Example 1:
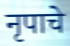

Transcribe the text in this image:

नृपाचे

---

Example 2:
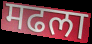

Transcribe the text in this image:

मढला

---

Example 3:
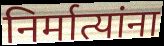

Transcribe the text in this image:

निर्मात्यांना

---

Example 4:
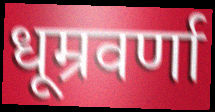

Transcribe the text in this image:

धूम्रवर्णा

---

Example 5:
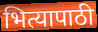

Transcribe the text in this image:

भित्यापाठी